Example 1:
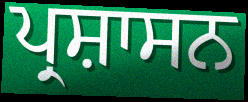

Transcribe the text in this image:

ਪ੍ਰਸ਼ਾਸਨ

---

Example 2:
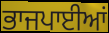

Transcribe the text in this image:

ਭਾਜਪਾਈਆਂ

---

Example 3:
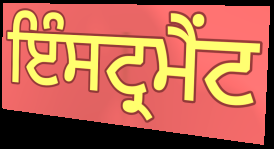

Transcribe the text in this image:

ਇੰਸਟ੍ਰਮੈਂਟ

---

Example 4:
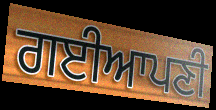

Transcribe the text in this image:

ਗਈਆਪਣੀ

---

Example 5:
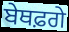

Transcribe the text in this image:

ਬੇਥਫ਼ਗੇ